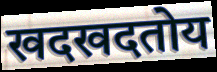
खदखदतोय